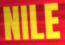
NILE